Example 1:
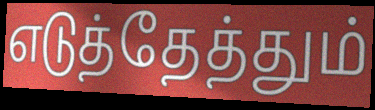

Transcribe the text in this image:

எடுத்தேத்தும்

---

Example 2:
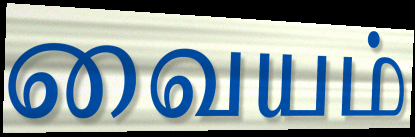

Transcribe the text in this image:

வையம்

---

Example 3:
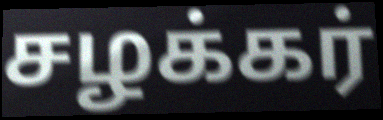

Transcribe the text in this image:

சழக்கர்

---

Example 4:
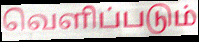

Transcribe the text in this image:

வெளிப்படும்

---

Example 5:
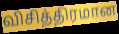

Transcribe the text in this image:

விசித்திரமான